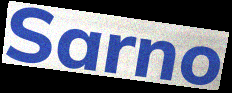
Sarno